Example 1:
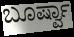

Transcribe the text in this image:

ಬೂರ್ಷ್ವಾ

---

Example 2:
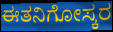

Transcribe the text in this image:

ಈತನಿಗೋಸ್ಕರ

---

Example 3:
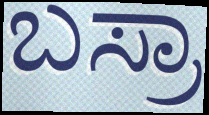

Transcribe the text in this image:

ಬಸ್ರಾ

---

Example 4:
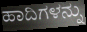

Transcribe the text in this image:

ಹಾದಿಗಳನ್ನು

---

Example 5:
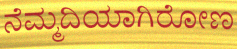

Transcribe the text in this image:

ನೆಮ್ಮದಿಯಾಗಿರೋಣ